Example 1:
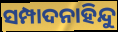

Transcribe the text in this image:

ସମ୍ପାଦନାହିନ୍ଦୁ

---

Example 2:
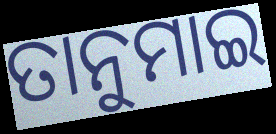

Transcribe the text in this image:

ତାନୁମାଇ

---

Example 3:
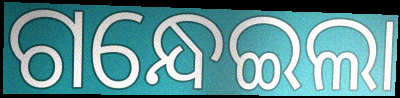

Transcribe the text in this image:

ଗନ୍ଧେଇଲା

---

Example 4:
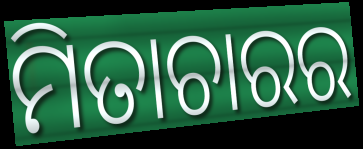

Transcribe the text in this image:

ମିତାଚାରର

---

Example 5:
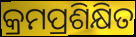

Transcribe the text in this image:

କ୍ରମପ୍ରଶିକ୍ଷିତ